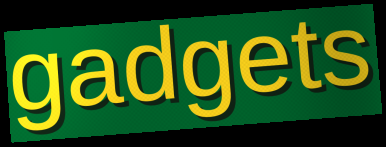
gadgets